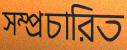
সম্প্রচারিত